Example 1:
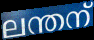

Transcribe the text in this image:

ലന്തന്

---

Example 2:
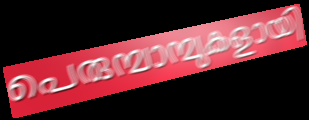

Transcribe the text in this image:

പെരുമ്പാമ്പുകളായി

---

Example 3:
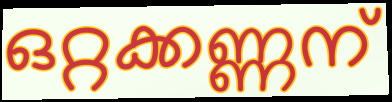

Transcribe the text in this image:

ഒറ്റക്കണ്ണന്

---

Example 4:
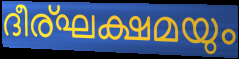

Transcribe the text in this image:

ദീര്ഘക്ഷമയും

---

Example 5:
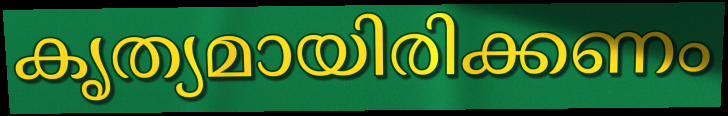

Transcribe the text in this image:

കൃത്യമായിരിക്കണം